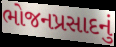
ભોજનપ્રસાદનું